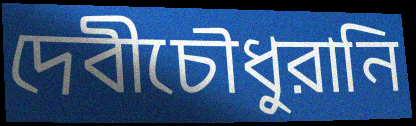
দেবীচৌধুরানি